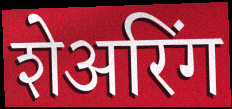
शेअरिंग